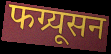
फग्र्यूसन